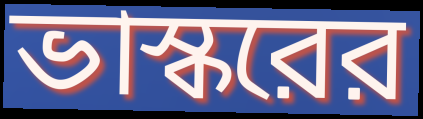
ভাস্করের